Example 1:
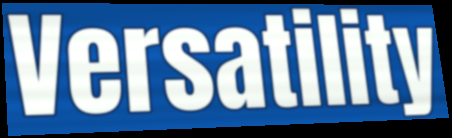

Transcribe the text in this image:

Versatility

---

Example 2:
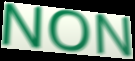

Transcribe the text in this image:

NON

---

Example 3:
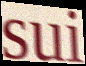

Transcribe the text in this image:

sui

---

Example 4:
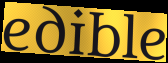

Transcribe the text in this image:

edible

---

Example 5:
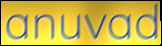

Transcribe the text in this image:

anuvad